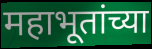
महाभूतांच्या